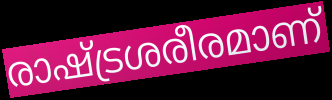
രാഷ്ട്രശരീരമാണ്